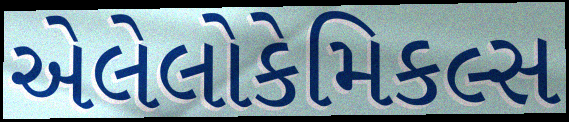
એલેલોકેમિકલ્સ